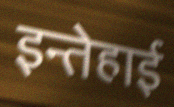
इन्तेहाई